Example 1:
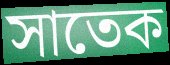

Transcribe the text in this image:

সাতেক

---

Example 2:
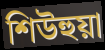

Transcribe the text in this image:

শিউহুয়া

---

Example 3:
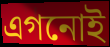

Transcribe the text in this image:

এগনোই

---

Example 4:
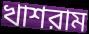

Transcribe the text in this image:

খাশরাম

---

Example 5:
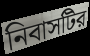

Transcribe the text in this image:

নিবাসটির